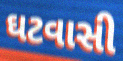
ઘટવાસી